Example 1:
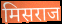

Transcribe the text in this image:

मिसराज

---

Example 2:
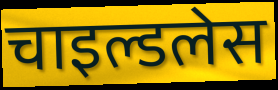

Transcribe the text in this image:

चाइल्डलेस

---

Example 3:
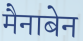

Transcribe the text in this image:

मैनाबेन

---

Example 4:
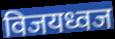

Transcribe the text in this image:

विजयध्वज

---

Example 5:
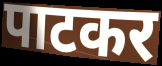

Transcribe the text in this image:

पाटकर